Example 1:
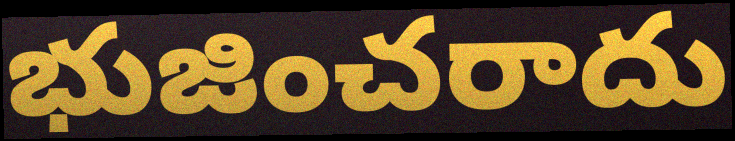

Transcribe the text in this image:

భుజించరాదు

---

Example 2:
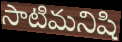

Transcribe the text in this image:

సాటిమనిషి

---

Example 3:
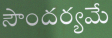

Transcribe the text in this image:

సౌందర్యమే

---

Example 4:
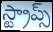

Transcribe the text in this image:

స్ట్రాప్స్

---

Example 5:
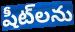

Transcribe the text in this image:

షీట్‌లను